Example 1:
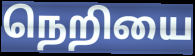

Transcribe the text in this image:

நெறியை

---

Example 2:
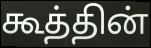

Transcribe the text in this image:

கூத்தின்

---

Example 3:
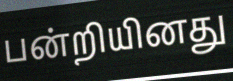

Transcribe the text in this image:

பன்றியினது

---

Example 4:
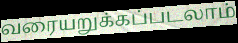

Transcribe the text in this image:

வரையறுக்கப்படலாம்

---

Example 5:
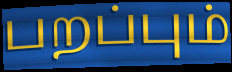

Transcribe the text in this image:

பறப்பும்